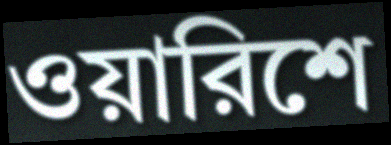
ওয়ারিশে